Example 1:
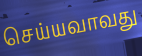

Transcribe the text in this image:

செய்யவாவது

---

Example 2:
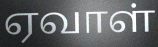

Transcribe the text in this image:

ஏவாள்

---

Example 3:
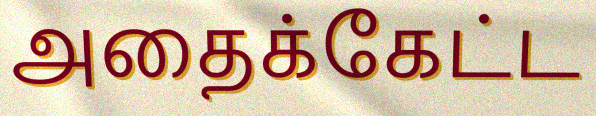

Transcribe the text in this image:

அதைக்கேட்ட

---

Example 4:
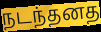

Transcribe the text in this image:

நடந்தனத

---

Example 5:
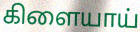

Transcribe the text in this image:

கிளையாய்